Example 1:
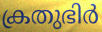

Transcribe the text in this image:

ക്രതുഭിർ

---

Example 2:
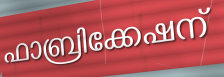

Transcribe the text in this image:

ഫാബ്രിക്കേഷന്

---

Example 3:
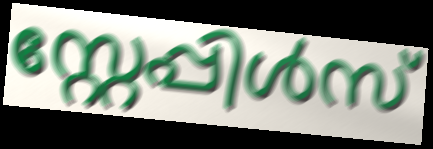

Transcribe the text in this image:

സ്റ്റേപ്പിൾസ്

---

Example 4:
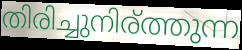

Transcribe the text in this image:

തിരിച്ചുനിര്ത്തുന്ന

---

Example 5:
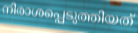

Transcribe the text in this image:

നിരാശപ്പെടുത്തിയത്